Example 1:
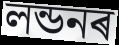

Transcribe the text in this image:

লন্ডনৰ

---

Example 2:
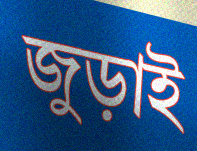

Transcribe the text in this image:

জুড়াই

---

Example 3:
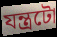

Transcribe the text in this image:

যন্ত্ৰটো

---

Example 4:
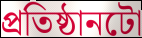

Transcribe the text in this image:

প্ৰতিষ্ঠানটো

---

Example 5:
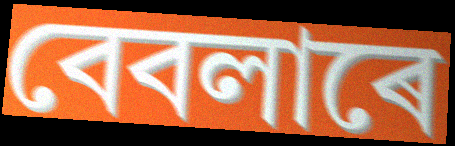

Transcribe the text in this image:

বেবলাৰে